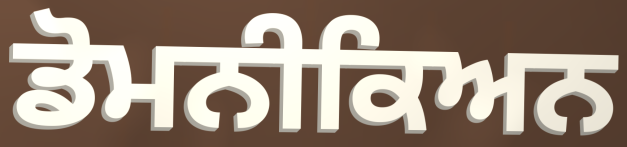
ਡੋਮਨੀਕਿਅਨ